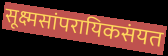
सूक्ष्मसांपरायिकसंयत